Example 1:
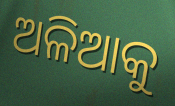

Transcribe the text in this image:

ଅଳିଆକୁ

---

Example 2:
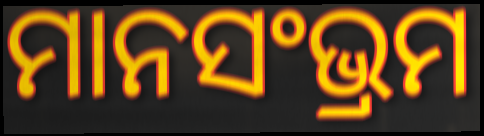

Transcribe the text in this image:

ମାନସଂଭ୍ରମ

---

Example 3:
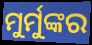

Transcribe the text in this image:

ମୁର୍ମୁଙ୍କର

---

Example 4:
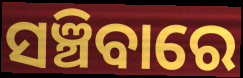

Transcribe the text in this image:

ସଞ୍ଚିବାରେ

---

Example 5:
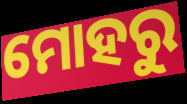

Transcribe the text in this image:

ମୋହରୁ